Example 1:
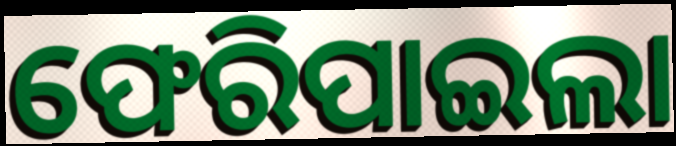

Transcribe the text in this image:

ଫେରିପାଇଲା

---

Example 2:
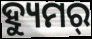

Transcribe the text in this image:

ହ୍ୟୁମର୍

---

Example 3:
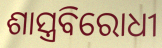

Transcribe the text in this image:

ଶାସ୍ତ୍ରବିରୋଧୀ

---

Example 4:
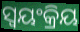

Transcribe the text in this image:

ସ୍ୱୟଂକ୍ରିୟ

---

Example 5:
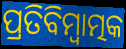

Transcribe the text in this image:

ପ୍ରତିବିମ୍ବାତ୍ମକ